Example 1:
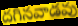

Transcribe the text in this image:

దగినవాడవు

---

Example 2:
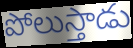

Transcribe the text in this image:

పోలుస్తాడు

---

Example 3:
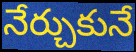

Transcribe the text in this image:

నేర్చుకునే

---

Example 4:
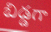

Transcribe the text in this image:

బిడ్డగా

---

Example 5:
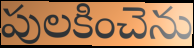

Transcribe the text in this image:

పులకించెను